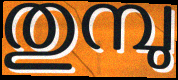
തുമ്പു